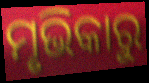
ମୃଭିକାରୁ